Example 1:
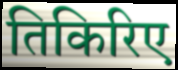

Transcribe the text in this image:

तिकिरिए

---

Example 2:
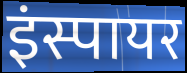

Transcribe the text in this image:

इंस्पायर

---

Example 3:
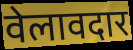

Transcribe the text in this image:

वेलावदार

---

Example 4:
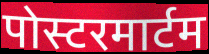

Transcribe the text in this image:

पोस्टरमार्टम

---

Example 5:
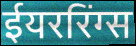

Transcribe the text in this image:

ईयररिंग्स